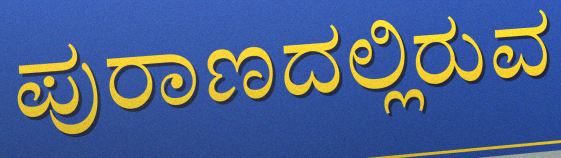
ಪುರಾಣದಲ್ಲಿರುವ